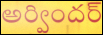
అర్విందర్